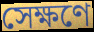
সেক্ষণে